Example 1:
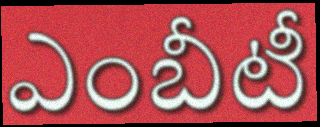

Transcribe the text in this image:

ఎంబీటీ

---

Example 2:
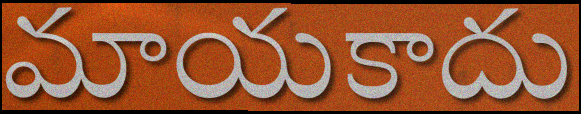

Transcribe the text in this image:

మాయకాదు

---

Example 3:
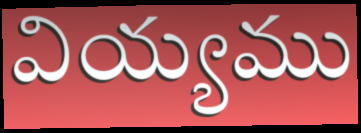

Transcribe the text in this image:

వియ్యము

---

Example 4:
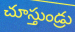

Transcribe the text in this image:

చూస్తుండ్రు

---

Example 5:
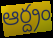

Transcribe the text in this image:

ఆర్ద్రం